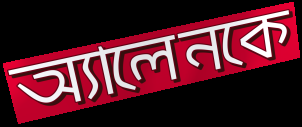
অ্যালেনকে